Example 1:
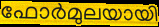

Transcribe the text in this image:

ഫോർമുലയായി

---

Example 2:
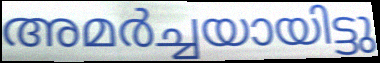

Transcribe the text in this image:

അമർച്ചയായിട്ടു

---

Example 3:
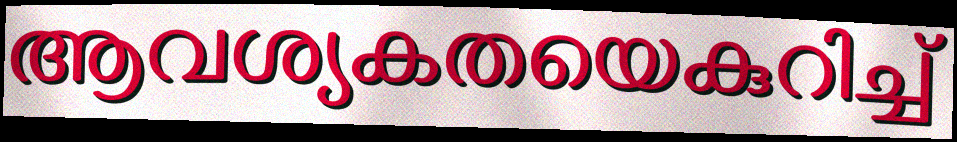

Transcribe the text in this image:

ആവശ്യകതയെകുറിച്ച്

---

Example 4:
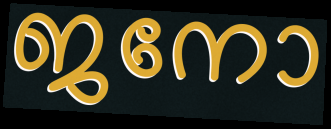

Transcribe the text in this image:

ജനോ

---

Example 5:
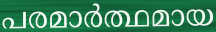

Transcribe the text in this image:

പരമാർത്ഥമായ